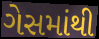
ગેસમાંથી